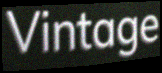
Vintage